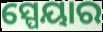
ସ୍ପେୟାର